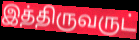
இத்திருவருட்